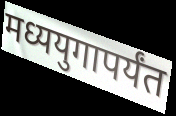
मध्ययुगापर्यंत